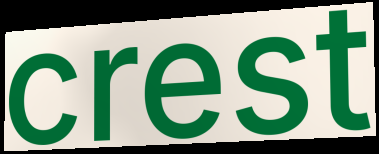
crest